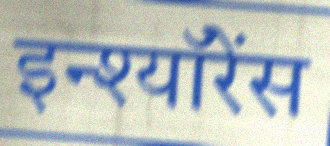
इन्श्यॉरेंस